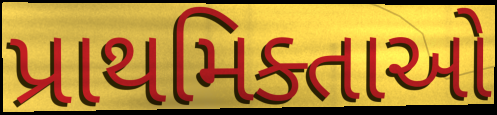
પ્રાથમિક્તાઓ